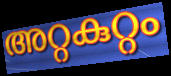
അറ്റകുറ്റം